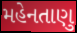
મહેનતાણુ